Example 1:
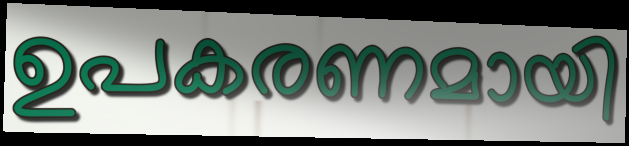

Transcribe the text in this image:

ഉപകരണമായി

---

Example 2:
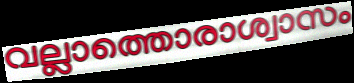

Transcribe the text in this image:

വല്ലാത്തൊരാശ്വാസം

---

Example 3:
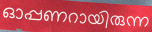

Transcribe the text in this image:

ഓപ്പണറായിരുന്ന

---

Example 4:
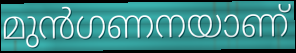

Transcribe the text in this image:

മുൻഗണനയാണ്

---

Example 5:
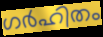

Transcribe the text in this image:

ഗർഹിതം